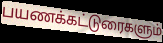
பயணக்கட்டுரைகளும்